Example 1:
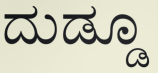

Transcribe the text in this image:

ದುಡ್ಡೂ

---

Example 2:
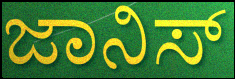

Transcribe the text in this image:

ಜಾನಿಸ್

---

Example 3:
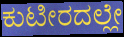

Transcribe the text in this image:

ಕುಟೀರದಲ್ಲೇ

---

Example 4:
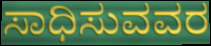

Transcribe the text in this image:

ಸಾಧಿಸುವವರ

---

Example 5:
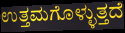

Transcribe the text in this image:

ಉತ್ತಮಗೊಳ್ಳುತ್ತದೆ